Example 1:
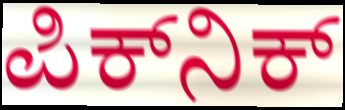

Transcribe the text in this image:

ಪಿಕ್‌ನಿಕ್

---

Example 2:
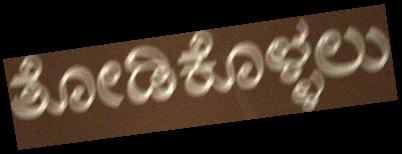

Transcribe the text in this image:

ತೋಡಿಕೊಳ್ಳಲು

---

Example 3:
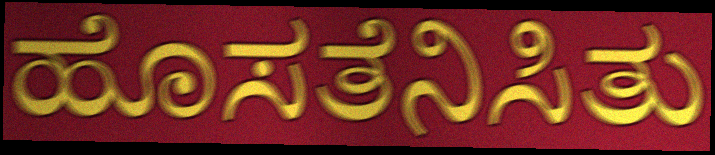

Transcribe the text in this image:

ಹೊಸತೆನಿಸಿತು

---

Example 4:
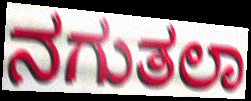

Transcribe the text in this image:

ನಗುತಲಾ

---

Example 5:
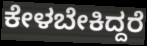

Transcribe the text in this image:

ಕೇಳಬೇಕಿದ್ದರೆ